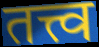
तत्त्व